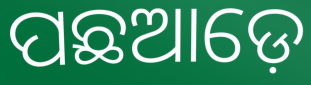
ପଛଆଡ଼େ